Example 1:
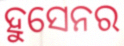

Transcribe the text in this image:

ହୁସେନର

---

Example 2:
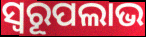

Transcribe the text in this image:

ସ୍ବରୂପଲାଭ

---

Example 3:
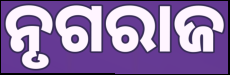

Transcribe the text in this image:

ନୃଗରାଜ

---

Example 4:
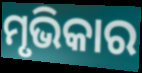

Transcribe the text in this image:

ମୃଭିକାର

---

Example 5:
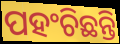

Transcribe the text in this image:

ପହଂଚିଛନ୍ତି